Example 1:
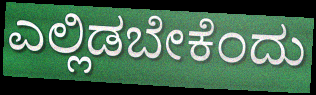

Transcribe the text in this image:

ಎಲ್ಲಿಡಬೇಕೆಂದು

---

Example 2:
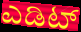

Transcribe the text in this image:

ಎಡಿಟ್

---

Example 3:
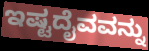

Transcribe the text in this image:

ಇಷ್ಟದೈವವನ್ನು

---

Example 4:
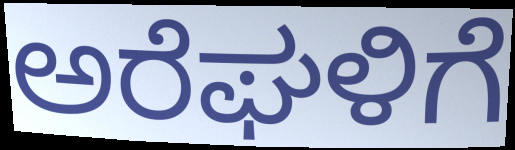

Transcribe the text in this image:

ಅರೆಘಳಿಗೆ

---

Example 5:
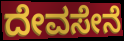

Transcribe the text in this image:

ದೇವಸೇನೆ